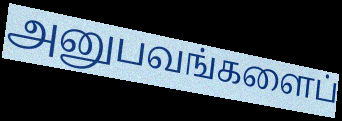
அனுபவங்களைப்